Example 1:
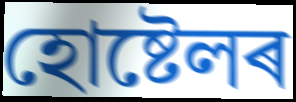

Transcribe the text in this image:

হোষ্টেলৰ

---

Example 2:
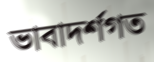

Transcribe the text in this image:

ভাবাদৰ্শগত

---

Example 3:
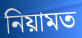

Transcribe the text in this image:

নিয়ামত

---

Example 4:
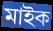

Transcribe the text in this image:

মাইক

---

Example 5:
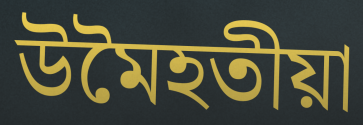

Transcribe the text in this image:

উমৈহতীয়া